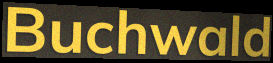
Buchwald